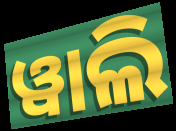
ୱାଲି